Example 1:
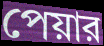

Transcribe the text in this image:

পেয়ার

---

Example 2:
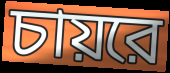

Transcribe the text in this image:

চায়রে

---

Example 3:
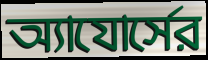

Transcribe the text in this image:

অ্যাযোর্সের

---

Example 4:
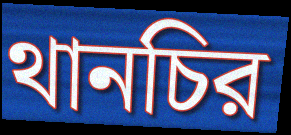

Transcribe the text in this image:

থানচির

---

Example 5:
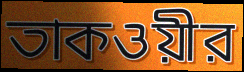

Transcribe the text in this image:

তাকওয়ীর